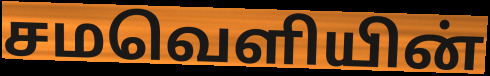
சமவெளியின்